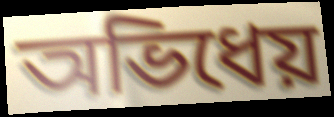
অভিধেয়